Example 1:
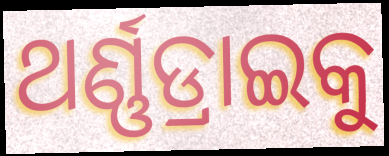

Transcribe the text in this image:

ଥର୍ଣ୍ଣଡ୍ରାଇକୁ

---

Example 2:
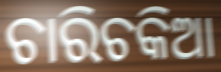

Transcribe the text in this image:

ଚାରିଚକିଆ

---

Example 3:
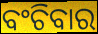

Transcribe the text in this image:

ବଂଚିବାର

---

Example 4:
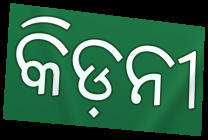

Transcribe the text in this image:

କିଡ଼ନୀ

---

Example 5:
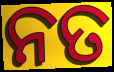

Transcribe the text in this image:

ନତ